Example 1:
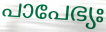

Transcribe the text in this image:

പാപേഭ്യഃ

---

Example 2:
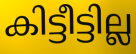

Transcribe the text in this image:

കിട്ടീട്ടില്ല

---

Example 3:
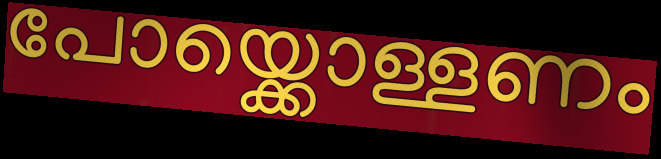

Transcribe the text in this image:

പോയ്ക്കൊള്ളണം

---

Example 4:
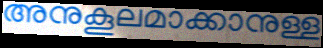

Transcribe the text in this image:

അനുകൂലമാക്കാനുള്ള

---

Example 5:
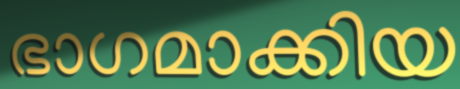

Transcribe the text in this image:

ഭാഗമാക്കിയ